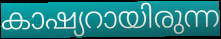
കാഷ്യറായിരുന്ന